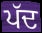
ਪੱਦ